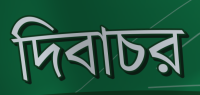
দিবাচর